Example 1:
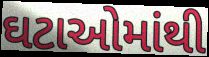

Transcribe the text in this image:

ઘટાઓમાંથી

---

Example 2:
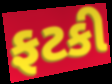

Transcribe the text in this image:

ફટકી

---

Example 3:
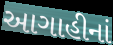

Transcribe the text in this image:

આગાહીનાં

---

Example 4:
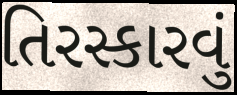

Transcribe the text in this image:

તિરસ્કારવું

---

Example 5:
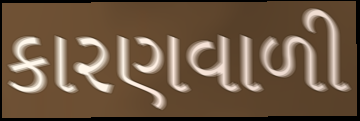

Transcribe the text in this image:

કારણવાળી